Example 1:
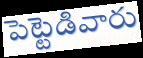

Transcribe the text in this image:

పెట్టెడివారు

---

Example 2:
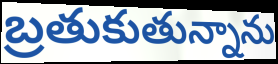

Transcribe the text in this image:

బ్రతుకుతున్నాను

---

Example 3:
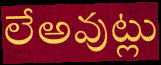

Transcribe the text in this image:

లేఅవుట్లు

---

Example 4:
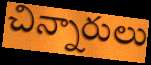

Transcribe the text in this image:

చిన్నారులు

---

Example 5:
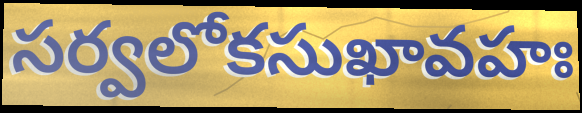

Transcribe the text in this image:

సర్వలోకసుఖావహః